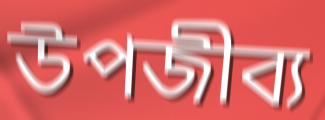
উপজীব্য